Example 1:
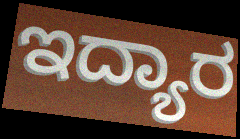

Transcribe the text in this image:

ಇದ್ಯಾರ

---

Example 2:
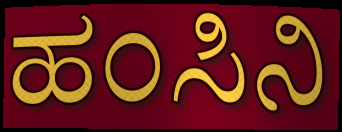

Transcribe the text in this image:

ಹಂಸಿನಿ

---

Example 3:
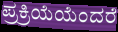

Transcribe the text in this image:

ಪ್ರಕ್ರಿಯೆಯೆಂದರೆ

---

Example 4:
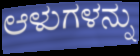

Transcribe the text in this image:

ಆಳುಗಳನ್ನು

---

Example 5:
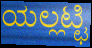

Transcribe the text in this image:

ಯಲ್ಲಟ್ಟಿ